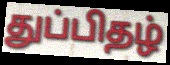
துப்பிதழ்